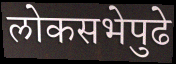
लोकसभेपुढे